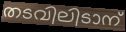
തടവിലിടാന്